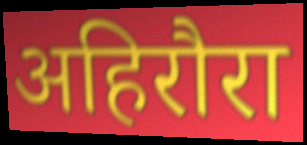
अहिरौरा